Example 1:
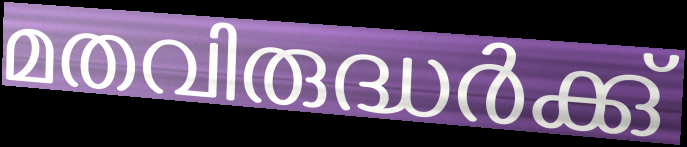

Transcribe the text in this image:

മതവിരുദ്ധർക്കു്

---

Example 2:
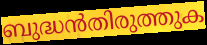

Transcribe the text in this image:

ബുദ്ധൻതിരുത്തുക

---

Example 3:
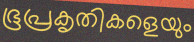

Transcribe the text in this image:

ഭൂപ്രകൃതികളെയും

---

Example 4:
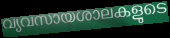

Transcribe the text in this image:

വ്യവസായശാലകളുടെ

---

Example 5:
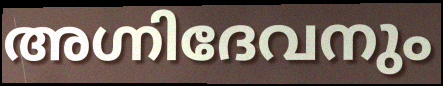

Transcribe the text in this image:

അഗ്നിദേവനും